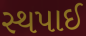
સ્થપાઈ